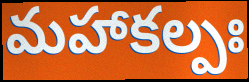
మహాకల్పః